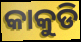
କାକୁଡି